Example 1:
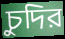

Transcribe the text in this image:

চুদির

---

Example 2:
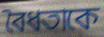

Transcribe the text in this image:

বৈধতাকে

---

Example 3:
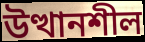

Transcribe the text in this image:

উত্থানশীল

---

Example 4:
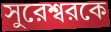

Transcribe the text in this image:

সুরেশ্বরকে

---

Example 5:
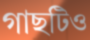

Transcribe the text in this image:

গাছটিও